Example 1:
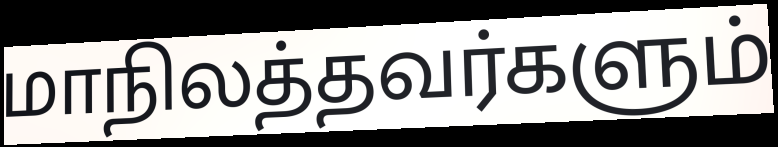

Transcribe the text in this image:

மாநிலத்தவர்களும்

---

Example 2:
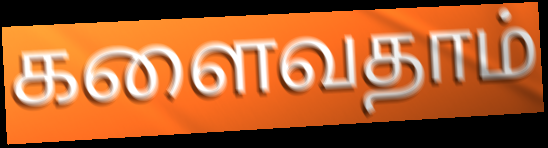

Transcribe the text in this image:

களைவதாம்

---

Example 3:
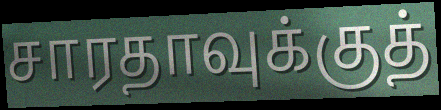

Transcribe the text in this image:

சாரதாவுக்குத்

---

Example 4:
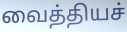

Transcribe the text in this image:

வைத்தியச்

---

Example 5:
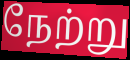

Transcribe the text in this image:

நேற்று